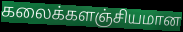
கலைக்களஞ்சியமான